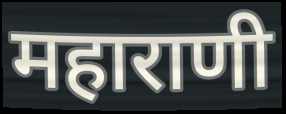
महाराणी